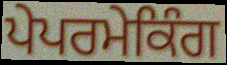
ਪੇਪਰਮੇਕਿੰਗ